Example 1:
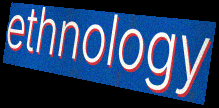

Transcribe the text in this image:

ethnology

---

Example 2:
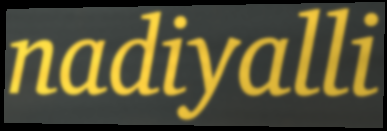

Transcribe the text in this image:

nadiyalli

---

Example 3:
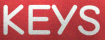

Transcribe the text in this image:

KEYS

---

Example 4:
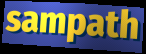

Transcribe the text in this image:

sampath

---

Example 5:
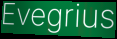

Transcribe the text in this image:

Evegrius